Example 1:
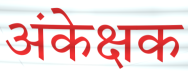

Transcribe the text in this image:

अंकेक्षक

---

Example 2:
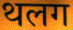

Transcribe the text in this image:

थलग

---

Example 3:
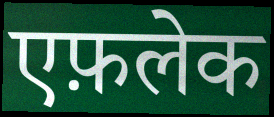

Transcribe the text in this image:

एफ़लेक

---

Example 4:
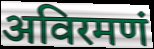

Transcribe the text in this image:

अविरमणं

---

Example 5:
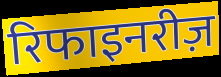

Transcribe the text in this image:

रिफाइनरीज़